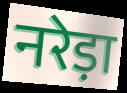
नरेड़ा